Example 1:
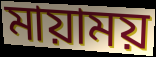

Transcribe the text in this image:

মায়াময়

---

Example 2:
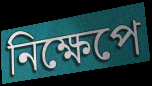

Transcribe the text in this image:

নিক্ষেপে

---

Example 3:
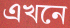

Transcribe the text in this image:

এখনে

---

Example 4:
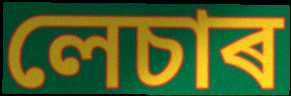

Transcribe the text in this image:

লেচাৰ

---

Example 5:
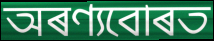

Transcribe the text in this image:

অৰণ্যবোৰত